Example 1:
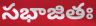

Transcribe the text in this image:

సభాజితః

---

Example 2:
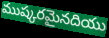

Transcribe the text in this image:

ముష్కరమైనదియు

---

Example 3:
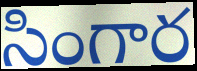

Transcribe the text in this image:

సింగార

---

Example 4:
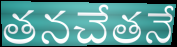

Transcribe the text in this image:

తనచేతనే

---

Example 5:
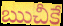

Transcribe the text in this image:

ఋచీకే